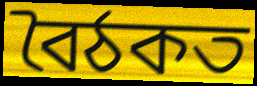
বৈঠকত